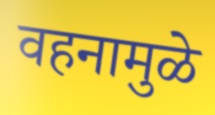
वहनामुळे